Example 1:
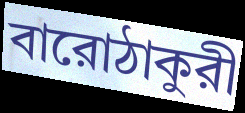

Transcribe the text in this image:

বারোঠাকুরী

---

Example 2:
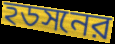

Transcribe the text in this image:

হডসনের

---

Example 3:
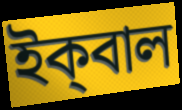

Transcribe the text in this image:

ইক্‌বাল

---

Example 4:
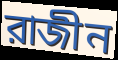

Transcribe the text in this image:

রাজীন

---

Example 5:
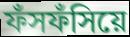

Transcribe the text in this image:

ফঁসফঁসিয়ে